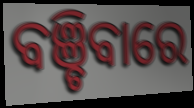
ବଞ୍ଚିବାରେ